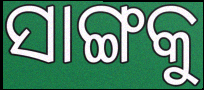
ସାଙ୍ଗକୁ